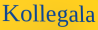
Kollegala